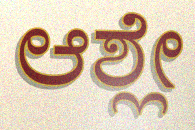
ಆಶ್ಲೇ